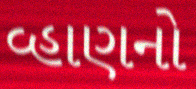
વ્હાણનો